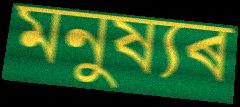
মনুষ্যৰ